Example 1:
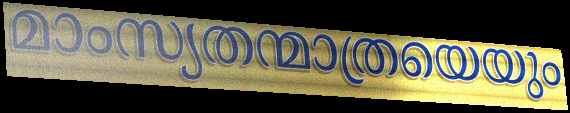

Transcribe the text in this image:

മാംസ്യതന്മാത്രയെയും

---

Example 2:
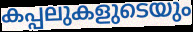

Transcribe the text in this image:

കപ്പലുകളുടെയും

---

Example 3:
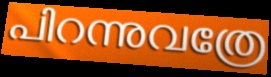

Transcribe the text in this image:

പിറന്നുവത്രേ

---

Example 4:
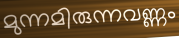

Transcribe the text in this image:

മുന്നമിരുന്നവണ്ണം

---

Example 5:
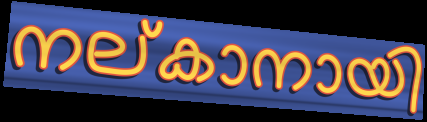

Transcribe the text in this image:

നല്കാനായി